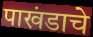
पाखंडाचे